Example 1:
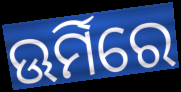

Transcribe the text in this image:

ଊର୍ମିରେ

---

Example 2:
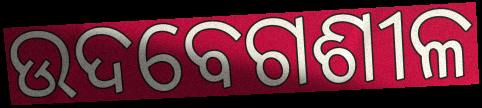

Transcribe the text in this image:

ଉଦବେଗଶୀଳ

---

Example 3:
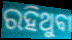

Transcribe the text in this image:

ରହିଥୁବା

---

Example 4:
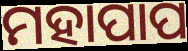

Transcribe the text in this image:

ମହାପାପ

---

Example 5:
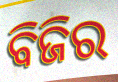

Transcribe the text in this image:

ବିଜିର